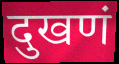
दुखणं